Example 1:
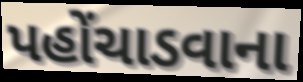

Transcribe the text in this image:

પહોંચાડવાના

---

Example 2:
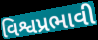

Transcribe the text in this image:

વિશ્વપ્રભાવી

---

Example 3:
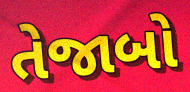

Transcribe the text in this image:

તેજાબો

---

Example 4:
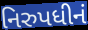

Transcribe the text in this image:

નિરુપધીનં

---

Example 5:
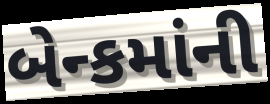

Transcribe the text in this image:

બેન્કમાંની